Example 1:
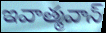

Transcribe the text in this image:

ఇవాత్మవాన్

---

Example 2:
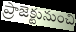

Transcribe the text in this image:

ప్రాజెక్టునుంచి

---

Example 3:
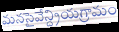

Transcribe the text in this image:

మనసైవేన్ద్రియగ్రామం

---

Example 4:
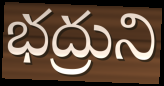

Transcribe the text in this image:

భద్రుని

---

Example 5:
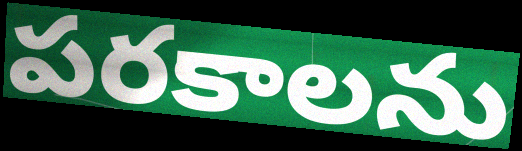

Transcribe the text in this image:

పరకాలను